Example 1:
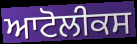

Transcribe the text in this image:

ਆਟੋਲੀਕਸ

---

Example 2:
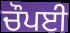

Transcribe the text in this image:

ਚੌਪਈ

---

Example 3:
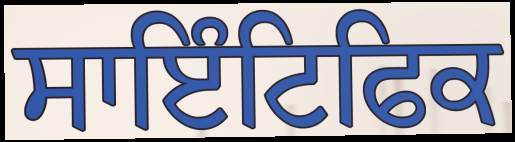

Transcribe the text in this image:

ਸਾਇੰਟਿਫਿਕ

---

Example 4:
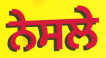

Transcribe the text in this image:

ਨੇਸਲੇ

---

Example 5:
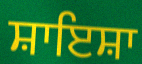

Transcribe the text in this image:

ਸ਼ਾਇਸ਼ਾ